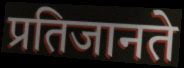
प्रतिजानते